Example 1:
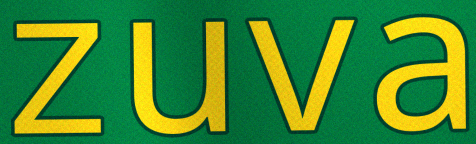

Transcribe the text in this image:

zuva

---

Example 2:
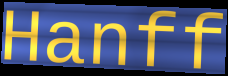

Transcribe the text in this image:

Hanff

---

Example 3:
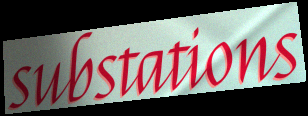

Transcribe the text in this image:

substations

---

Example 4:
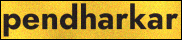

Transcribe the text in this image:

pendharkar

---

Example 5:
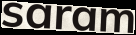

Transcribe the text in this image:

saram